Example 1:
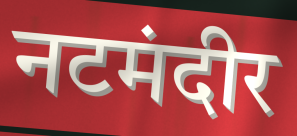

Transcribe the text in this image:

नटमंदीर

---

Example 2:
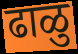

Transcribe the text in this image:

ढाळु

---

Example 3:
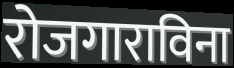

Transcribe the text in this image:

रोजगाराविना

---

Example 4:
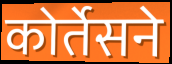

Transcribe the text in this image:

कोर्तेसने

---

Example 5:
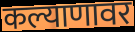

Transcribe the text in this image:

कल्याणावर